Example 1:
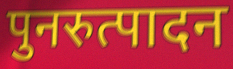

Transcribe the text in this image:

पुनरुत्पादन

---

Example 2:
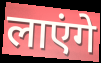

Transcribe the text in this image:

लाएंगे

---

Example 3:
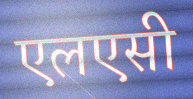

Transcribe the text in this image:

एलएसी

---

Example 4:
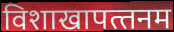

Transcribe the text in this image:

विशाखापत्‍तनम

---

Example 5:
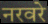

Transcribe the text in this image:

नरवरे